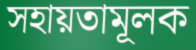
সহায়তামূলক